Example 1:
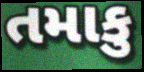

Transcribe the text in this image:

તમાકુ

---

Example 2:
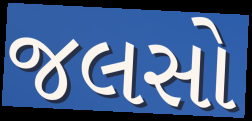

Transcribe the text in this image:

જલસો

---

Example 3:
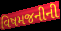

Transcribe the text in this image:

વિષમજનીની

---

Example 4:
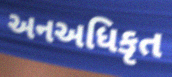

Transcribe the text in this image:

અનઅધિકૃત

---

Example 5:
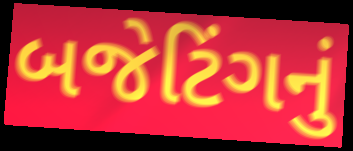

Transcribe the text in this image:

બજેટિંગનું